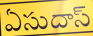
ఏసుదాస్